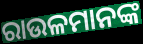
ରାଉଳମାନଙ୍କ